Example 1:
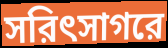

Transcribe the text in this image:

সরিৎসাগরে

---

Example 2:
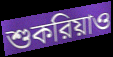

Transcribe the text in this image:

শুকরিয়াও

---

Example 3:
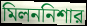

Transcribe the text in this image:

মিলননিশার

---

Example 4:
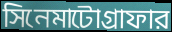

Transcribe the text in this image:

সিনেমাটোগ্রাফার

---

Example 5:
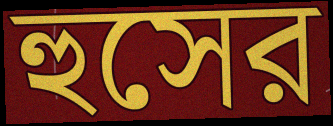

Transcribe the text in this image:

হুসের